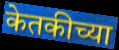
केतकीच्या